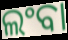
ଲଂବା